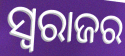
ସ୍ୱରାଜର